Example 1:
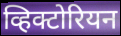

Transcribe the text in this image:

व्हिक्टोरियन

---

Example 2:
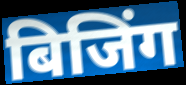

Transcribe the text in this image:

बिजिंग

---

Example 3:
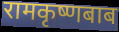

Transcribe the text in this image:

रामकृष्णबाब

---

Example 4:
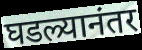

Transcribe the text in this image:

घडल्यानंतर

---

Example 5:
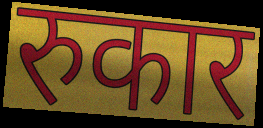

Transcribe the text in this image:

रुकार